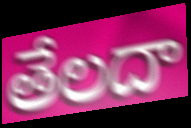
తేలదా